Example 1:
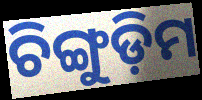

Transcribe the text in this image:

ଚିଙ୍ଗୁଡ଼ିମ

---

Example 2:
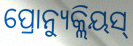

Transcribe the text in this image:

ପ୍ରୋନ୍ୟୁକ୍ଲିୟସ୍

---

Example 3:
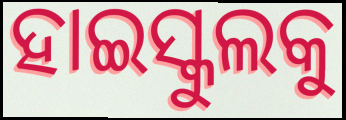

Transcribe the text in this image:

ହାଇସ୍କୁଲକୁ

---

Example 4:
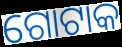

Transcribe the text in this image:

ଗୋଟାକ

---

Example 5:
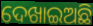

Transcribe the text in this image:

ଦେଖାଇଅଛି